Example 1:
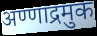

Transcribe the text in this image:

अण्णाद्रमुक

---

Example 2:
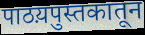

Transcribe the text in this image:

पाठय़पुस्तकातून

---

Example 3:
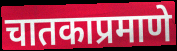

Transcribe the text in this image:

चातकाप्रमाणे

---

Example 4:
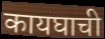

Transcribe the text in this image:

कायघाची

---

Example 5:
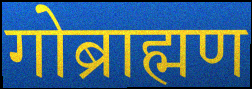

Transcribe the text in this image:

गोब्राह्मण